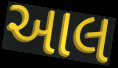
આલ